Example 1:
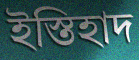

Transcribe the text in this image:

ইস্তিহাদ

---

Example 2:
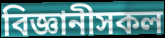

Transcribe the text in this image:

বিজ্ঞানীসকল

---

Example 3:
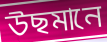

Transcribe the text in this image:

উছমানে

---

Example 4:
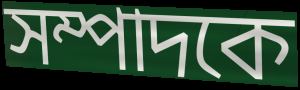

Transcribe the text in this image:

সম্পাদকে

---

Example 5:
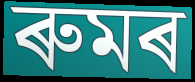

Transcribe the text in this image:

ৰুমৰ